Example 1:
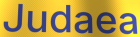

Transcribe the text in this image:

Judaea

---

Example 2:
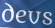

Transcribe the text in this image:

deus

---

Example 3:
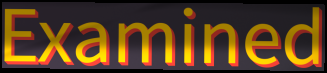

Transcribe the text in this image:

Examined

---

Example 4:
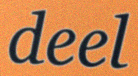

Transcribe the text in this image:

deel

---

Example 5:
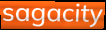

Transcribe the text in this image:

sagacity